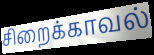
சிறைக்காவல்